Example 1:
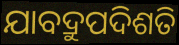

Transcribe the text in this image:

ଯାବଦ୍ରୁପଦିଶତି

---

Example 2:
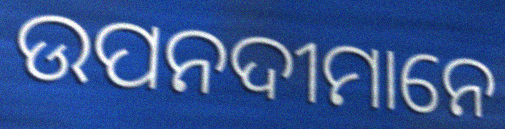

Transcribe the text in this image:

ଉପନଦୀମାନେ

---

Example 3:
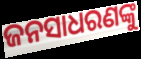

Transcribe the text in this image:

ଜନସାଧରଣଙ୍କୁ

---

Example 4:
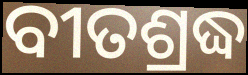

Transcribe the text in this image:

ବୀତଶ୍ରଦ୍ଧ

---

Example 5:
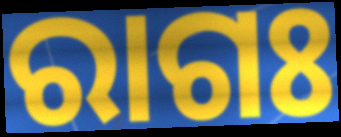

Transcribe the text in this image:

ରାଗଃ